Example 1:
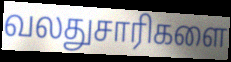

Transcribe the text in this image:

வலதுசாரிகளை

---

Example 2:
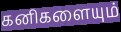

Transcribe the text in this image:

கனிகளையும்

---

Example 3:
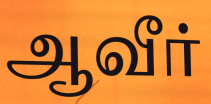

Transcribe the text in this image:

ஆவீர்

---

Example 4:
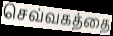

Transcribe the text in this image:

செவ்வகத்தை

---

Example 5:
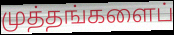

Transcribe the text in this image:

முத்தங்களைப்